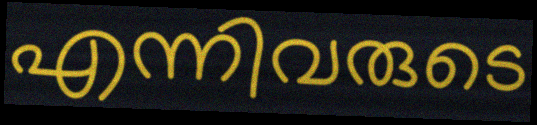
എന്നിവരുടെ